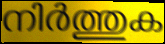
നിർത്തുക